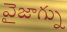
వైజాగ్ను